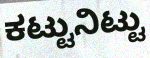
ಕಟ್ಟುನಿಟ್ಟು